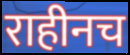
राहीनच